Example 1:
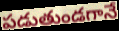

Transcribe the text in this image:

పడుతుండగానే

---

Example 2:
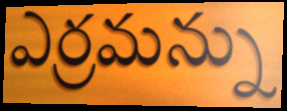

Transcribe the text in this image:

ఎర్రమన్ను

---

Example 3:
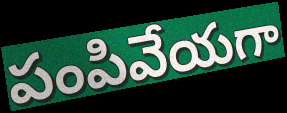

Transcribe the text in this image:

పంపివేయగా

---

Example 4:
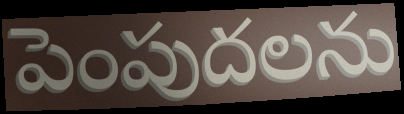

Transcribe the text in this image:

పెంపుదలను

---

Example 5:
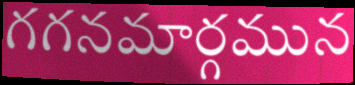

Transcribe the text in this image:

గగనమార్గమున